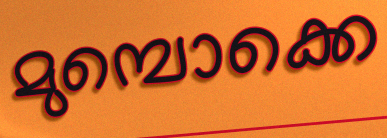
മുമ്പൊക്കെ